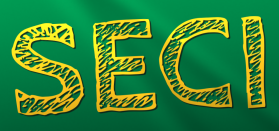
SECI